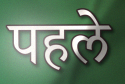
पहले